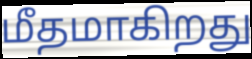
மீதமாகிறது